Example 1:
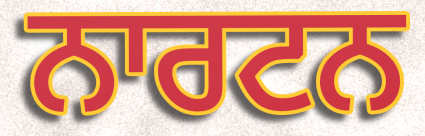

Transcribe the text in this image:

ਨਾਰਟਨ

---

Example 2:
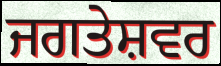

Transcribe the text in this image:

ਜਗਤੇਸ਼ਵਰ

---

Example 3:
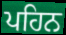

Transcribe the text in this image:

ਪਹਿਨ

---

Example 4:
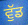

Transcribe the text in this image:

ਵੁੱਡ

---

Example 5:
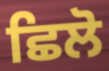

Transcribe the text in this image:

ਛਿਲੋ